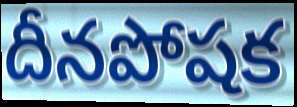
దీనపోషక